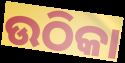
ଉଠିକା